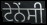
ਟੇਨੇਂਸੀ